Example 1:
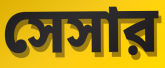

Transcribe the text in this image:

সেসার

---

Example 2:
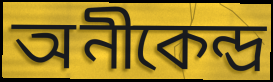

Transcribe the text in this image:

অনীকেন্দ্র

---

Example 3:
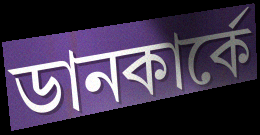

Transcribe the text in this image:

ডানকার্কে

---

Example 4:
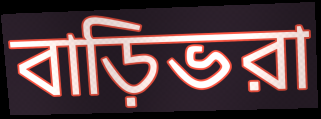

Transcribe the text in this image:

বাড়িভরা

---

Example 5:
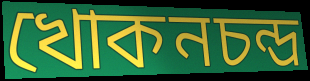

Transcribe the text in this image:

খোকনচন্দ্র